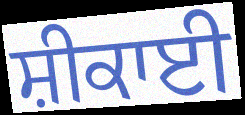
ਸ਼ੀਕਾਈ